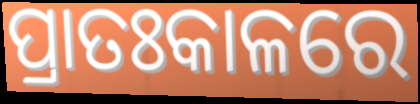
ପ୍ରାତଃକାଳରେ